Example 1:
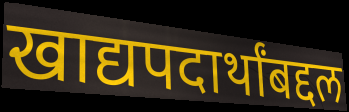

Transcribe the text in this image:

खाद्यपदार्थांबद्दल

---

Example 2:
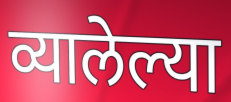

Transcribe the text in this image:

व्यालेल्या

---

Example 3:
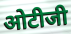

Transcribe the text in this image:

ओटीजी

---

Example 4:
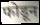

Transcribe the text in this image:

फोडून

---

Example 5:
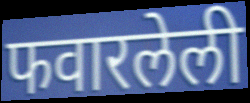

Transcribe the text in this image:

फवारलेली